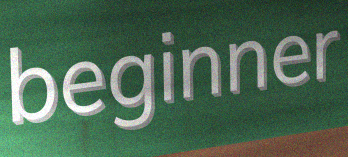
beginner